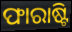
ଫାରାଷ୍ଟି